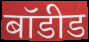
बॉडीड